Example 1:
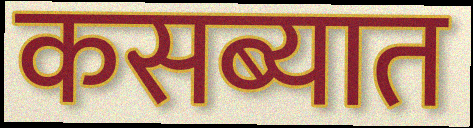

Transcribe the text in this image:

कसब्यात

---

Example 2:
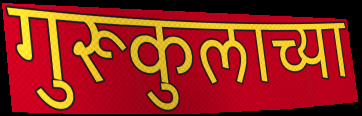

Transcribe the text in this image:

गुरूकुलाच्या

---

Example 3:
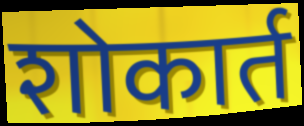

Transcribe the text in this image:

शोकार्त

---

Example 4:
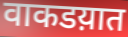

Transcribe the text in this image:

वाकडय़ात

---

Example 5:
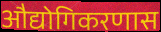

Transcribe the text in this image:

औद्योगिकरणास